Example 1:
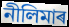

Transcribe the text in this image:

নীলিমাৰ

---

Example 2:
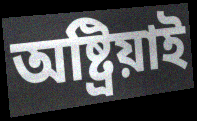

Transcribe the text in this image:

অষ্ট্ৰিয়াই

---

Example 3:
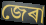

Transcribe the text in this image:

জেৰা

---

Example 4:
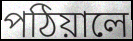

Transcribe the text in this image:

পঠিয়ালে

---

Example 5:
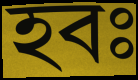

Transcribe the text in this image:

হবঃ